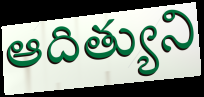
ఆదిత్యుని